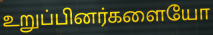
உறுப்பினர்களையோ